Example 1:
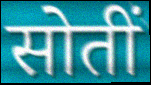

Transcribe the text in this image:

सोतीं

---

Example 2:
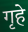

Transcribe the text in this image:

गृहे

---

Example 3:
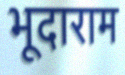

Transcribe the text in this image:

भूदाराम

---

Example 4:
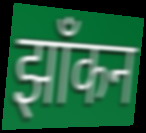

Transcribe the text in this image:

झाँकन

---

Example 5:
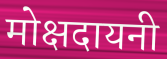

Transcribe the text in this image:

मोक्षदायनी